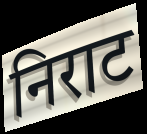
निराट